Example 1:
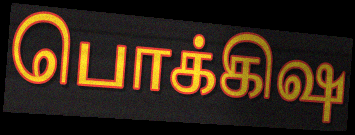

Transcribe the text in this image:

பொக்கிஷ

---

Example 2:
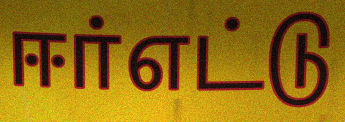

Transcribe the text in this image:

ஈர்எட்டு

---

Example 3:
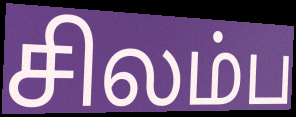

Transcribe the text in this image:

சிலம்ப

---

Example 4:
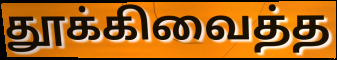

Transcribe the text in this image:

தூக்கிவைத்த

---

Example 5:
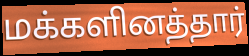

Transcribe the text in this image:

மக்களினத்தார்